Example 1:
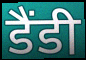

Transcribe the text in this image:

डैंडी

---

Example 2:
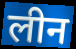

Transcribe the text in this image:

लीन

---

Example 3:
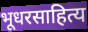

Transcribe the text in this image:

भूधरसाहित्य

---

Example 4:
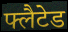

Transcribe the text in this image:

फ्लैटेड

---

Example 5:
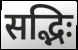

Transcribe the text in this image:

सद्भिः